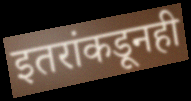
इतरांकडूनही